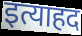
इत्याहद